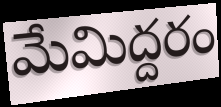
మేమిద్దరం